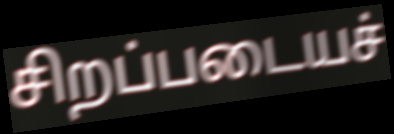
சிறப்படையச்